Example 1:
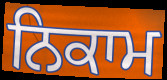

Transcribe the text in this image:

ਨਿਕਾਮ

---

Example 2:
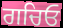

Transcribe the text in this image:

ਗਚਿਓ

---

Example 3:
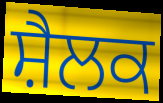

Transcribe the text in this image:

ਸ਼ੈਲਕ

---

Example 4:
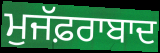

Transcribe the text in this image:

ਮੁਜੱਫ਼ਰਾਬਾਦ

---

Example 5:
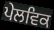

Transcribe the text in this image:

ਪੇਲਵਿਕ